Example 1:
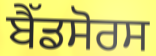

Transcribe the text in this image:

ਬੈੱਡਸੋਰਸ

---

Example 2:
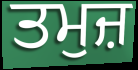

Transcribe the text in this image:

ਤਮੁਜ਼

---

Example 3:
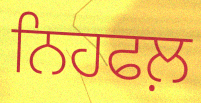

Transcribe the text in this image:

ਨਿਹਫਲ਼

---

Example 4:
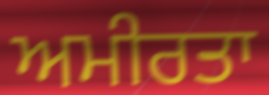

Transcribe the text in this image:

ਅਮੀਰਤਾ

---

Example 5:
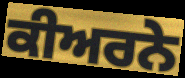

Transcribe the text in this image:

ਕੀਅਰਨੇ